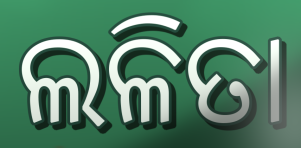
ଲଳିତା